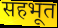
सहभूत